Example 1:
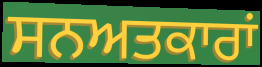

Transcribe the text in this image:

ਸਨਅਤਕਾਰਾਂ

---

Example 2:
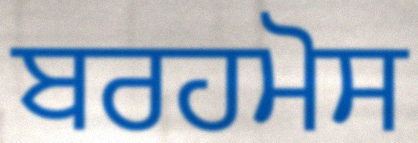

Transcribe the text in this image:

ਬਰਹਮੋਸ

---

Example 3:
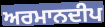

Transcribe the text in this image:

ਅਰਮਾਨਦੀਪ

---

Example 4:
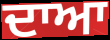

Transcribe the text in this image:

ਦਾਆ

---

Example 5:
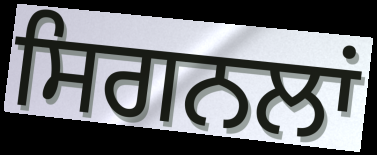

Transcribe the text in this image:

ਸਿਗਨਲਾਂ